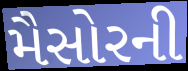
મૈસોરની